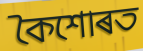
কৈশোৰত